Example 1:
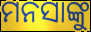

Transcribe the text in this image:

ମନସାଙ୍କୁ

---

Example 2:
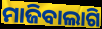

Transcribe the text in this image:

ମାଜିବାଲାଗି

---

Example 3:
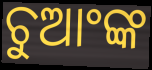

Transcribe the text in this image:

ଚୁଆଂଙ୍କ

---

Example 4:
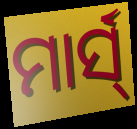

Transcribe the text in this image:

ମାର୍ସ୍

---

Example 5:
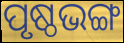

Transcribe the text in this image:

ପୃଷ୍ଠଭଙ୍ଗ